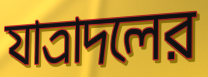
যাত্রাদলের